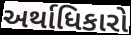
અર્થાધિકારો